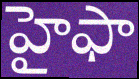
హైఫా